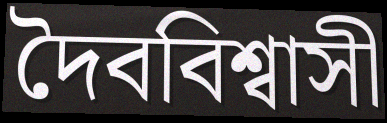
দৈববিশ্বাসী